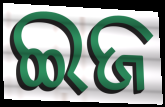
ଇଜ